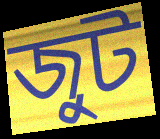
জুট